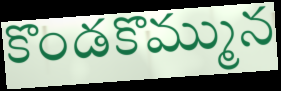
కొండకొమ్మున